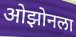
ओझोनला